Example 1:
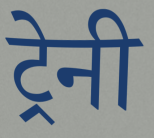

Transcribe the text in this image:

ट्रेनी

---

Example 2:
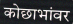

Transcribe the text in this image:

कोछाभांवर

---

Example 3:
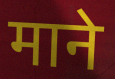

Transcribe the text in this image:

माने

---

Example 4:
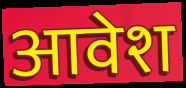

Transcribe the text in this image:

आवेश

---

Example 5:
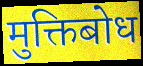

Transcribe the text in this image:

मुक्तिबोध